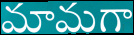
మామగా